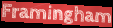
Framingham